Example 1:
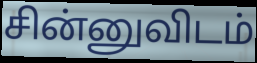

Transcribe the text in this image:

சின்னுவிடம்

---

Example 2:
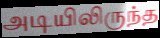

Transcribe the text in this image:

அடியிலிருந்த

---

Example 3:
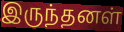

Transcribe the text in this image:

இருந்தனள்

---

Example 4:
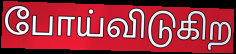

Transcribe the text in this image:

போய்விடுகிற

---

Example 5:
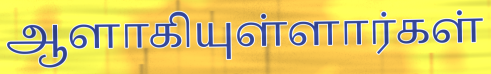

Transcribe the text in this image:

ஆளாகியுள்ளார்கள்